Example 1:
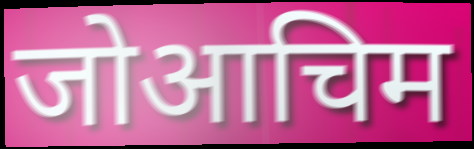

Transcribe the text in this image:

जोआचिम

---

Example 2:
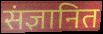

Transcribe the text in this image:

संज्ञानित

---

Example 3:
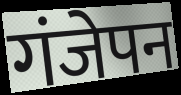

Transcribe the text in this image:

गंजेपन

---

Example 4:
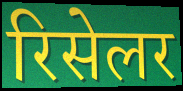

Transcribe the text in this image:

रिसेलर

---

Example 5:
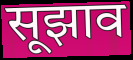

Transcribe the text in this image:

सूझाव